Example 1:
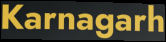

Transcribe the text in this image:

Karnagarh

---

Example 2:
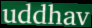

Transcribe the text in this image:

uddhav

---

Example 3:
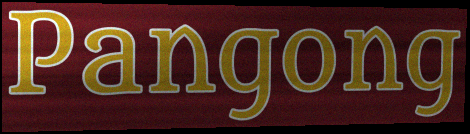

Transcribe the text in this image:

Pangong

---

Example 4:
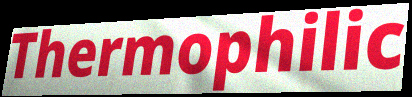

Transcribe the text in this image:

Thermophilic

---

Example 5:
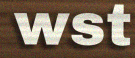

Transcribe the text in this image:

wst